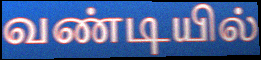
வண்டியில்